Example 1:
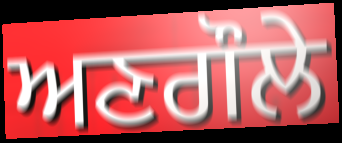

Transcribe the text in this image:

ਅਣਗੌਲੇ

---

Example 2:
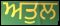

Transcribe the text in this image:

ਅਤੁਲ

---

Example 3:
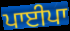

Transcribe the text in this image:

ਪਾਈਪਾ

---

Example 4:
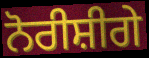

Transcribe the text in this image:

ਨੋਰੀਸ਼ੀਗੇ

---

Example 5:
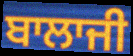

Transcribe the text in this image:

ਬਾਲਾਜੀ